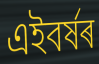
এইবৰ্ষৰ